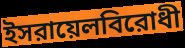
ইসরায়েলবিরোধী